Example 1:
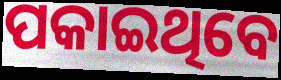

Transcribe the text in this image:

ପକାଇଥିବେ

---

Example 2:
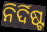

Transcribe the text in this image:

ନିର୍ଦିଷ୍ଟ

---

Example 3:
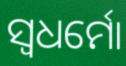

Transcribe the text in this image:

ସ୍ୱଧର୍ମୋ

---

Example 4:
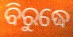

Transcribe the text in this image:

ବିରୁଦ୍ଧେ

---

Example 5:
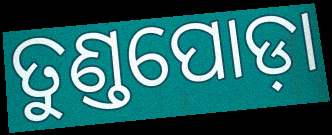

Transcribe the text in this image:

ତୁଣ୍ଡପୋଡ଼ା